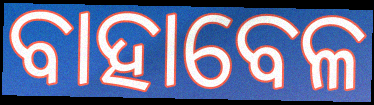
ବାହାବେଳ